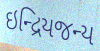
ઇન્દ્રિયજન્ય